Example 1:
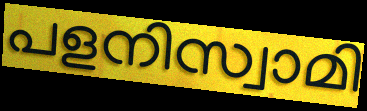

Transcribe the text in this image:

പളനിസ്വാമി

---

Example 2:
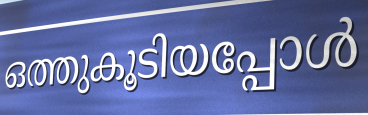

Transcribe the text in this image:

ഒത്തുകൂടിയപ്പോൾ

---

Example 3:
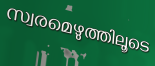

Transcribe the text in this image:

സ്വരമെഴുത്തിലൂടെ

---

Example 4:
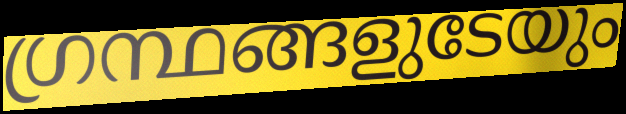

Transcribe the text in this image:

ഗ്രന്ഥങ്ങളുടേയും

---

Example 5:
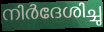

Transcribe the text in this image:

നിർദേശിച്ചു